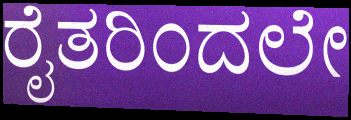
ರೈತರಿಂದಲೇ